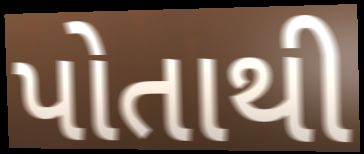
પોતાથી